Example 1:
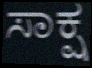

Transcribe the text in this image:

ಸಾಕ್ಷ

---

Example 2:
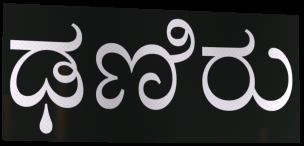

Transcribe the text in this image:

ಢಣಿರು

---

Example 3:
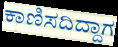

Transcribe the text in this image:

ಕಾಣಿಸದಿದ್ದಾಗ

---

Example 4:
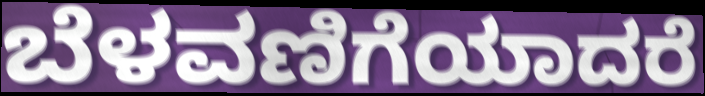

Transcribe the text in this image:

ಬೆಳವಣಿಗೆಯಾದರೆ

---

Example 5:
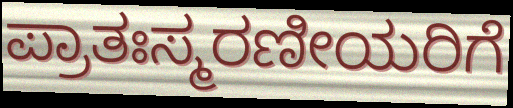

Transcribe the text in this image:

ಪ್ರಾತಃಸ್ಮರಣೀಯರಿಗೆ